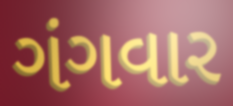
ગંગવાર